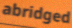
abridged